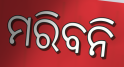
ମରିବନି